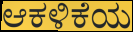
ಆಕಳಿಕೆಯ